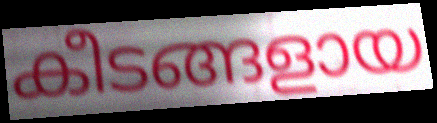
കീടങ്ങളായ